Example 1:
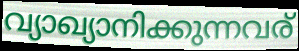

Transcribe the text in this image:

വ്യാഖ്യാനിക്കുന്നവര്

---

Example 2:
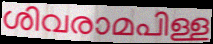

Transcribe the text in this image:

ശിവരാമപിള്ള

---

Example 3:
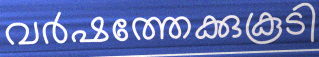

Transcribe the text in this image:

വർഷത്തേക്കുകൂടി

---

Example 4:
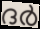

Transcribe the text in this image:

ദർ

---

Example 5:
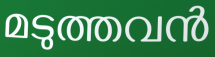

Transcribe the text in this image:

മടുത്തവൻ